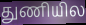
துணியில